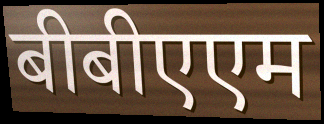
बीबीएएम